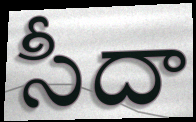
సీదా